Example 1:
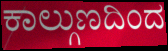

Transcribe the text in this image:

ಕಾಲ್ಗುಣದಿಂದ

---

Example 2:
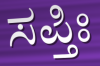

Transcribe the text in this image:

ಸಪ್ತಿಃ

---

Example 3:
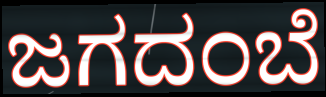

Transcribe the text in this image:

ಜಗದಂಬೆ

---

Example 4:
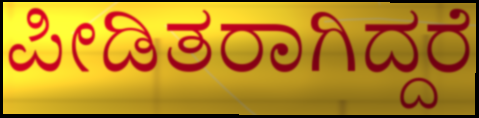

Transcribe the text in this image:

ಪೀಡಿತರಾಗಿದ್ದರೆ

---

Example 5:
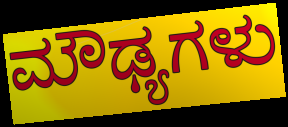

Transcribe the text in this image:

ಮೌಢ್ಯಗಳು